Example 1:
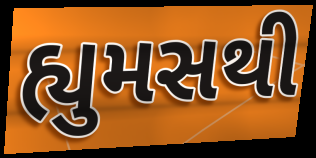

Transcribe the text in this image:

હ્યુમસથી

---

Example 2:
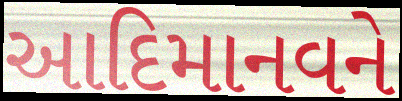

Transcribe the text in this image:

આદિમાનવને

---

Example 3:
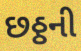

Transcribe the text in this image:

છઠ્ઠની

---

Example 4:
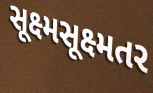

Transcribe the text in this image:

સૂક્ષ્મસૂક્ષ્મતર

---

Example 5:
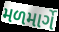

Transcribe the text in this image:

મળમાર્ગે